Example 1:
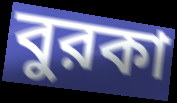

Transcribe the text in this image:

বুরকা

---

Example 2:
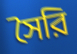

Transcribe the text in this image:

সৈরি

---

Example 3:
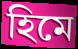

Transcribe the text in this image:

হিমে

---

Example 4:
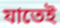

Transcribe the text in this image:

যাতেই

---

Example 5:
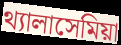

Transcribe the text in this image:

থ্যালাসেমিয়া